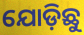
ଯୋଡ଼ିଛୁ